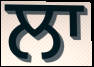
ਲਾ